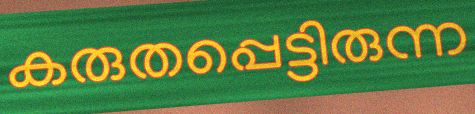
കരുതപ്പെട്ടിരുന്ന